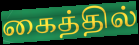
கைத்தில்